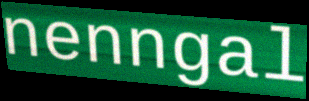
nenngal